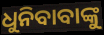
ଧୁନିବାବାଙ୍କୁ